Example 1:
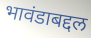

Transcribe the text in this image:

भावंडाबद्दल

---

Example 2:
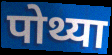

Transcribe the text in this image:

पोथ्या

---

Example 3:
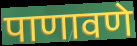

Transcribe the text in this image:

पाणावणे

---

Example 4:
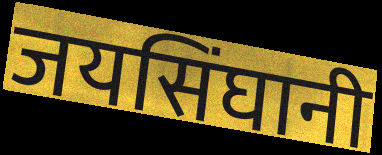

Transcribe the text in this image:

जयसिंघानी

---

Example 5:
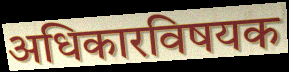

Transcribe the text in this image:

अधिकारविषयक